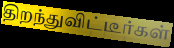
திறந்துவிட்டீர்கள்